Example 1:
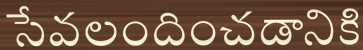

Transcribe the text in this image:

సేవలందించడానికి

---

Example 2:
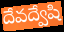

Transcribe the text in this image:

దేవద్వేషి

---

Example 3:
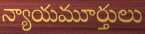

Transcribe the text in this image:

న్యాయమూర్తులు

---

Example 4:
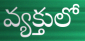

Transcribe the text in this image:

వ్యక్తులో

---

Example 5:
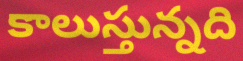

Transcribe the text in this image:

కాలుస్తున్నది